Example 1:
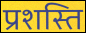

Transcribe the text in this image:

प्रशस्ति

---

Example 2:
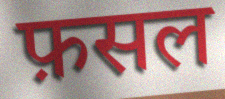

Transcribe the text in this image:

फ़सल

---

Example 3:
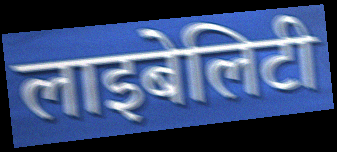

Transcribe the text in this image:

लाइबेलिटी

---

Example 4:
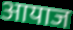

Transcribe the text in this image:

आयाज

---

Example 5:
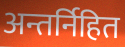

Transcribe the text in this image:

अन्तर्निहित